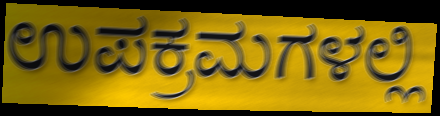
ಉಪಕ್ರಮಗಳಲ್ಲಿ